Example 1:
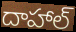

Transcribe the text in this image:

దాహాల్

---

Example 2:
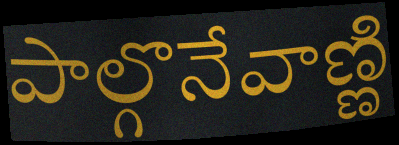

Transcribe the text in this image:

పాల్గొనేవాణ్ణి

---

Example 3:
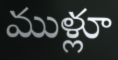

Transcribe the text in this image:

ముళ్లూ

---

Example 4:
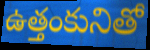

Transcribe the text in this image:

ఉత్తంకునితో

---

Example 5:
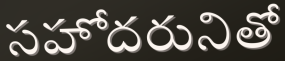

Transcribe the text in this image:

సహోదరునితో